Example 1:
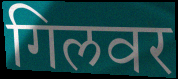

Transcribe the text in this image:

गिलवर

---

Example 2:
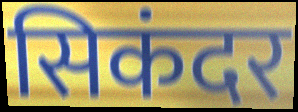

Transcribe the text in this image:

सिकंदर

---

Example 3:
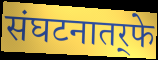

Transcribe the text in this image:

संघटनातर्फे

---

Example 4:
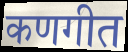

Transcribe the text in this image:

कणगीत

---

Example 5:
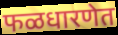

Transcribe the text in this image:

फळधारणेत